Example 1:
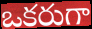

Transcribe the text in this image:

ఒకరుగా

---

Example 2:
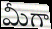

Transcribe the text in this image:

మీగా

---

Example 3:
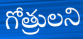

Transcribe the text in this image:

గోత్రులని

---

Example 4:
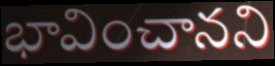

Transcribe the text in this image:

భావించానని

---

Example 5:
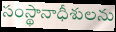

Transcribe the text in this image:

సంస్థానాధీశులను